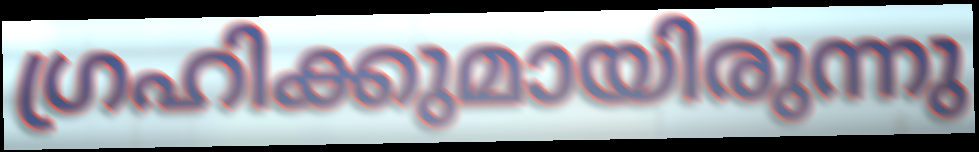
ഗ്രഹിക്കുമായിരുന്നു